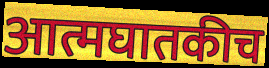
आत्मघातकीच